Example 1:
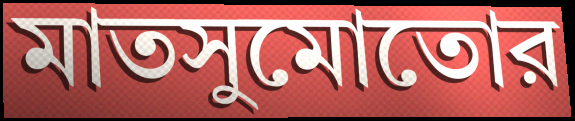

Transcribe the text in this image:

মাতসুমোতোর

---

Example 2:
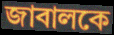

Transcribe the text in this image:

জাবালকে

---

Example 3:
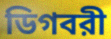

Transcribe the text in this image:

ডিগবরী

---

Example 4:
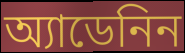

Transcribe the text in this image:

অ্যাডেনিন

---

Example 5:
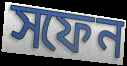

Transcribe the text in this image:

সফেন